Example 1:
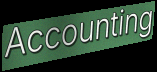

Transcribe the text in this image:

Accounting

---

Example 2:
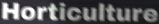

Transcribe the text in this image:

Horticulture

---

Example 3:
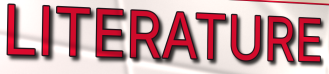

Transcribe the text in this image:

LITERATURE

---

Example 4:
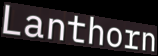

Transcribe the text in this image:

Lanthorn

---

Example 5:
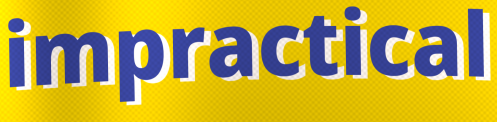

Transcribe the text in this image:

impractical